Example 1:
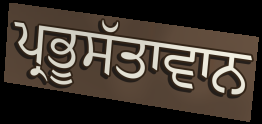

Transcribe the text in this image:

ਪ੍ਰਭੂਸੱਤਾਵਾਨ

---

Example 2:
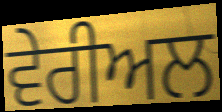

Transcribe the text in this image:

ਵੇਰੀਅਲ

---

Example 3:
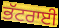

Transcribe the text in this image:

ਭੱਟਰਾਈ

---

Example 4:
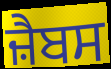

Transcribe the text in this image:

ਜ਼ੈਬਸ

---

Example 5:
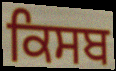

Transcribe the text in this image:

ਕਿਸਬ